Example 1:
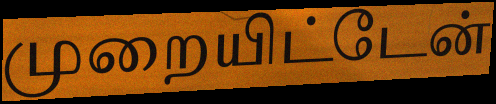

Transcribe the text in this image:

முறையிட்டேன்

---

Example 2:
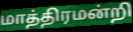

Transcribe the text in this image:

மாத்திரமன்றி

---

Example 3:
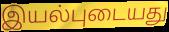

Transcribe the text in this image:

இயல்புடையது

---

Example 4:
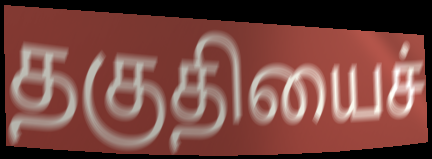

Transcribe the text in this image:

தகுதியைச்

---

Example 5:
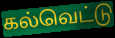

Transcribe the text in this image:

கல்வெட்டு